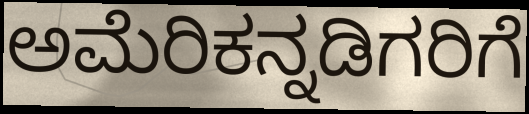
ಅಮೆರಿಕನ್ನಡಿಗರಿಗೆ